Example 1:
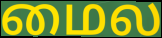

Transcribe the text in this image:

மைல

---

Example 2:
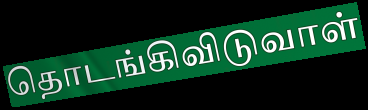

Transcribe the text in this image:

தொடங்கிவிடுவாள்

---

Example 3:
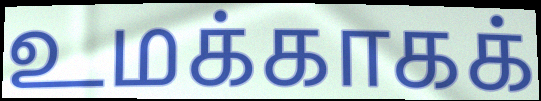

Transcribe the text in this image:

உமக்காகக்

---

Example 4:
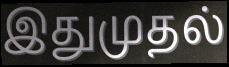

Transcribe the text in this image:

இதுமுதல்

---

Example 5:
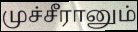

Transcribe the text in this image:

முச்சீரானும்